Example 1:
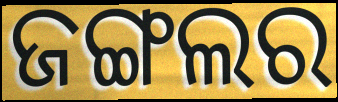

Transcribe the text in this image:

ଜଙ୍ଗଲର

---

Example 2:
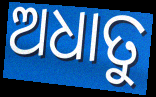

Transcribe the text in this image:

ଅଧାତୁ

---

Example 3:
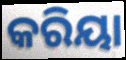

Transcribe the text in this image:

କରିୟା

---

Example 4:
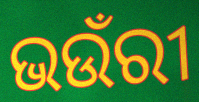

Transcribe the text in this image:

ଭଉଁରୀ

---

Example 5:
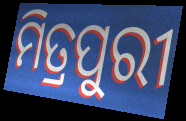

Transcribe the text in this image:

ମିତ୍ରପୁରୀ